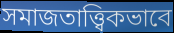
সমাজতাত্ত্বিকভাবে